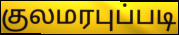
குலமரபுப்படி